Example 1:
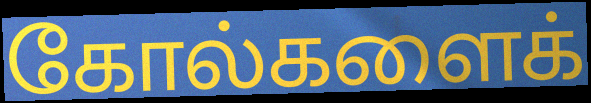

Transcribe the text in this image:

கோல்களைக்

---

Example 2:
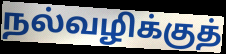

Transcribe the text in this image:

நல்வழிக்குத்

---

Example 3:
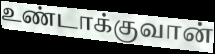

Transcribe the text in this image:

உண்டாக்குவான்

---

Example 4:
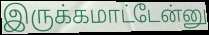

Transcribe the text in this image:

இருக்கமாட்டேன்னு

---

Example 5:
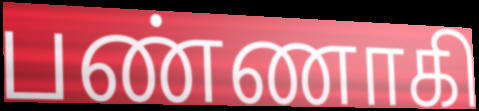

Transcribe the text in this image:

பண்ணாகி